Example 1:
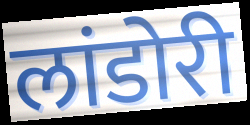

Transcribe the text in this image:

लांडोरी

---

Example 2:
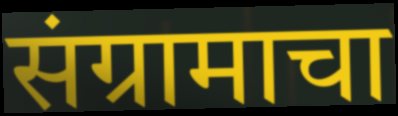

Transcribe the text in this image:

संग्रामाचा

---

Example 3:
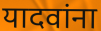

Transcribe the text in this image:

यादवांना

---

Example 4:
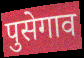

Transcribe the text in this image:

पुसेगाव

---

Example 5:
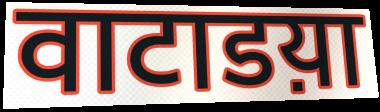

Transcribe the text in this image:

वाटाडय़ा